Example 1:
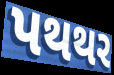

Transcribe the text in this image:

પથથર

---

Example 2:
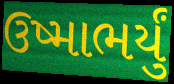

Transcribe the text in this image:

ઉષ્માભર્યું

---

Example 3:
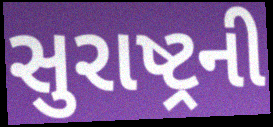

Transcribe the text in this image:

સુરાષ્ટ્રની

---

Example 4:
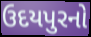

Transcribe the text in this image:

ઉદયપુરનો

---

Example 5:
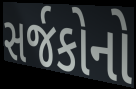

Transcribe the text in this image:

સર્જકોનો